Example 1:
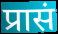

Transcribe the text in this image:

प्रासं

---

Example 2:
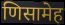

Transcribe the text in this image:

णिसामेह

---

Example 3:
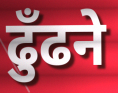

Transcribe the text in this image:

ढुँढने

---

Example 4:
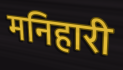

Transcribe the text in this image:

मनिहारी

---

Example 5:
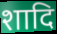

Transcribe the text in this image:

शादि